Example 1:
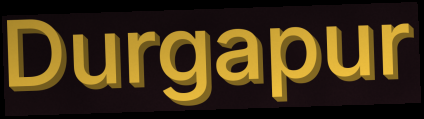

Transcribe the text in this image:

Durgapur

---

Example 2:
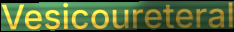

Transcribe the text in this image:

Vesicoureteral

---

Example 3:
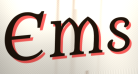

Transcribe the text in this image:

Ems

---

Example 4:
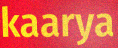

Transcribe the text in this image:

kaarya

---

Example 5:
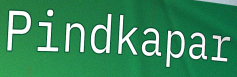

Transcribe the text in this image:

Pindkapar